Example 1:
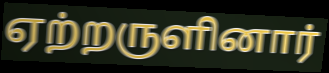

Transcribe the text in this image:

ஏற்றருளினார்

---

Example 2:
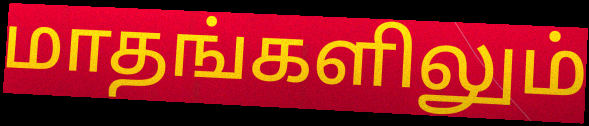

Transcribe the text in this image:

மாதங்களிலும்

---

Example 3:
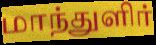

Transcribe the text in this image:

மாந்துளிர்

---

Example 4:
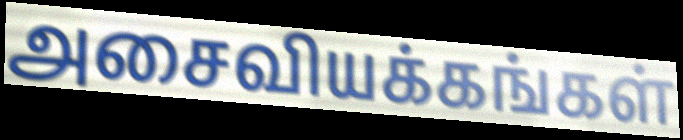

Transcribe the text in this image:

அசைவியக்கங்கள்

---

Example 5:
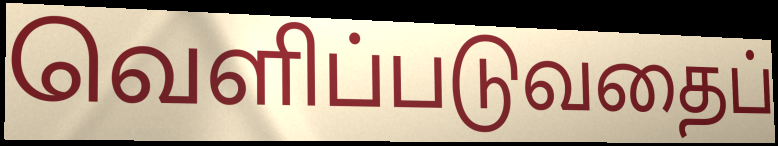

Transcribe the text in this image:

வெளிப்படுவதைப்